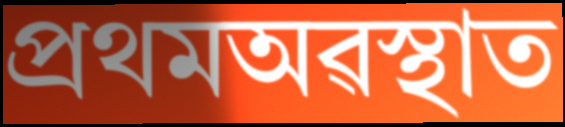
প্ৰথমঅৱস্থাত